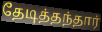
தேடித்தந்தார்